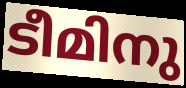
ടീമിനു